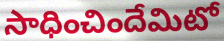
సాధించిందేమిటో